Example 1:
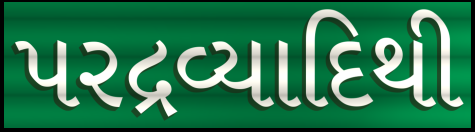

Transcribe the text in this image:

પરદ્રવ્યાદિથી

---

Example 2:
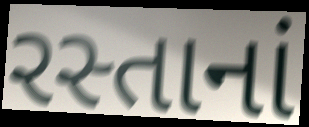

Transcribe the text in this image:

રસ્તાનાં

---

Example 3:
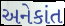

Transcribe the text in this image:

અનેકાંત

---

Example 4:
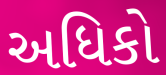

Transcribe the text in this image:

અધિકો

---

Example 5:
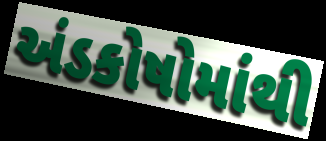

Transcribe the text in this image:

અંડકોષોમાંથી